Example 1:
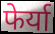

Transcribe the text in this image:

फेर्या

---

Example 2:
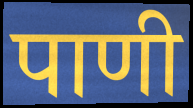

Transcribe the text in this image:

पाणी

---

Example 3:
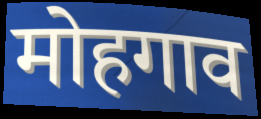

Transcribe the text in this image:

मोहगाव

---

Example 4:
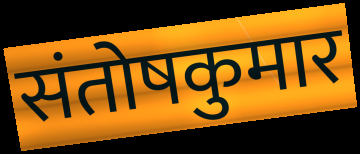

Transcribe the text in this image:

संतोषकुमार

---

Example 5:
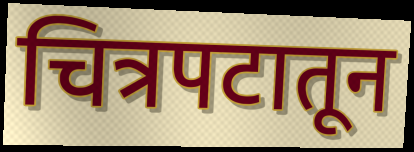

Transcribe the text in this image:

चित्रपटातून